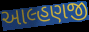
આલ્હણજી